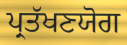
ਪ੍ਰਤੱਖਣਯੋਗ